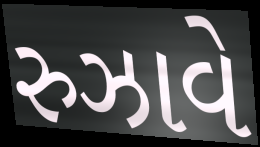
રુઝાવે